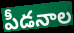
పీడనాల